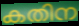
കതിന